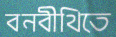
বনবীথিতে